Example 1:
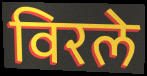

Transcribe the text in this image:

विरले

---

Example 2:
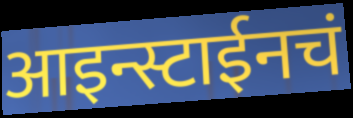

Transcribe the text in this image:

आइन्स्टाईनचं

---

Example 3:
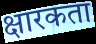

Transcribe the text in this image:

क्षारकता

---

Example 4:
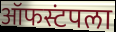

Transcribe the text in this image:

ऑफस्टंपला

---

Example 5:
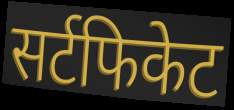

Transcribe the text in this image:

सर्टफिकेट